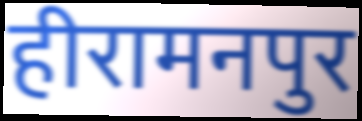
हीरामनपुर